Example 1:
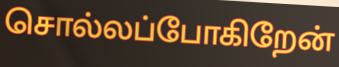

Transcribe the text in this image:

சொல்லப்போகிறேன்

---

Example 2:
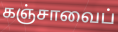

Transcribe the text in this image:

கஞ்சாவைப்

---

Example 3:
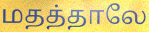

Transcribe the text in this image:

மதத்தாலே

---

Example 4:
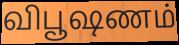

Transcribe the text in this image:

விபூஷணம்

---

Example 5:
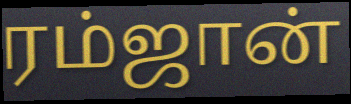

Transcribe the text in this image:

ரம்ஜான்